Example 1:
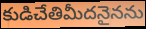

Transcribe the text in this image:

కుడిచేతిమీదనైనను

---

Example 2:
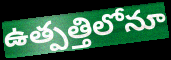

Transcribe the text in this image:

ఉత్పత్తిలోనూ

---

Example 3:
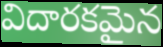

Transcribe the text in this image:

విదారకమైన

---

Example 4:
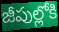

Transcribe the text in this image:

జీపుల్లోకి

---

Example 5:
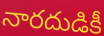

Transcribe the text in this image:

నారదుడికీ